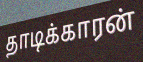
தாடிக்காரன்